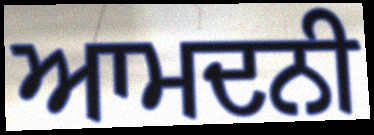
ਆਮਦਨੀ